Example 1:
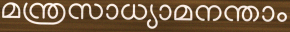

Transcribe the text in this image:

മന്ത്രസാധ്യാമനന്താം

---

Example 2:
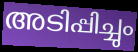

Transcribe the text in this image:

അടിപ്പിച്ചും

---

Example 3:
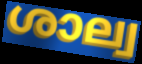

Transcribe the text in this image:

ശാല്വ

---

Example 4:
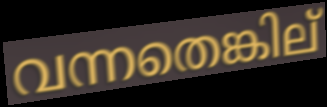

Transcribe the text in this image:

വന്നതെങ്കില്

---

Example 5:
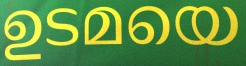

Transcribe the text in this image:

ഉടമയെ